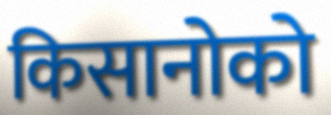
किसानोको